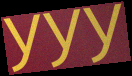
yyy